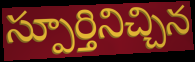
స్పూర్తినిచ్చిన